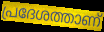
പ്രദേശത്താണ്